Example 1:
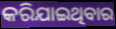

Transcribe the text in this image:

କରିଯାଇଥିବାର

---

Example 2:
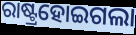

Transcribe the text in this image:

ରାଷ୍ଟ୍ରହୋଇଗଲା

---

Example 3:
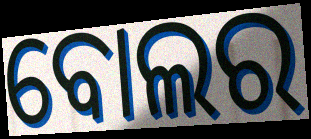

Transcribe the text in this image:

ବୋଲର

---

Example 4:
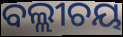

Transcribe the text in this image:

ବଲ୍ଲୀଚୟ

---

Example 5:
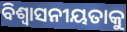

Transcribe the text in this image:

ବିଶ୍ୱାସନୀୟତାକୁ